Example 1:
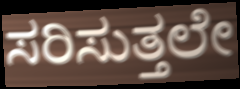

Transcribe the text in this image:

ಸರಿಸುತ್ತಲೇ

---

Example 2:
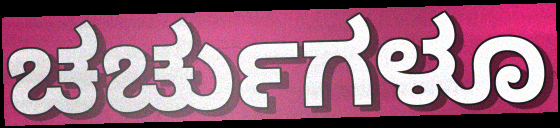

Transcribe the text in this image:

ಚರ್ಚುಗಳೂ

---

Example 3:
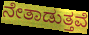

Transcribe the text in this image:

ನೇತಾಡುತ್ತವೆ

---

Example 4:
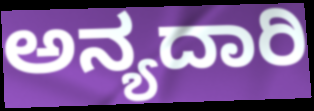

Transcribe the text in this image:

ಅನ್ಯದಾರಿ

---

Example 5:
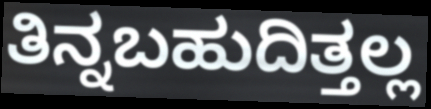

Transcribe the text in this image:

ತಿನ್ನಬಹುದಿತ್ತಲ್ಲ